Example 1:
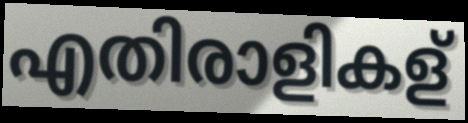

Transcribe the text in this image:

എതിരാളികള്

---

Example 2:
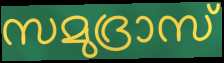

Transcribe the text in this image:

സമുദ്രാസ്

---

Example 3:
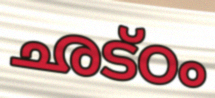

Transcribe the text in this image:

ഛട്ഠം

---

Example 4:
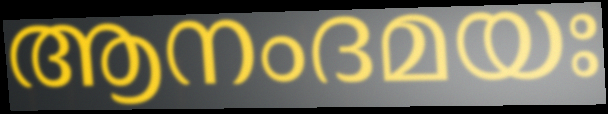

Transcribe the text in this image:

ആനംദമയഃ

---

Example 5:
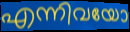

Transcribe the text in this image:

എന്നിവയോ